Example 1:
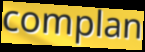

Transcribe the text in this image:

complan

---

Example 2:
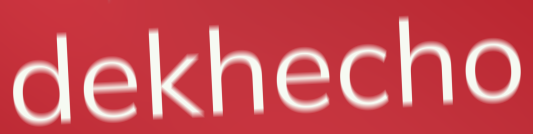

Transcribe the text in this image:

dekhecho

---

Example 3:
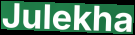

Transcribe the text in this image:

Julekha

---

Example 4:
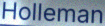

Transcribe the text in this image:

Holleman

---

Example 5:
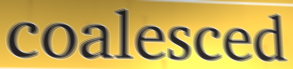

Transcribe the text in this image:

coalesced